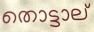
തൊട്ടാല്